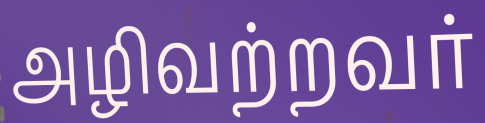
அழிவற்றவர்